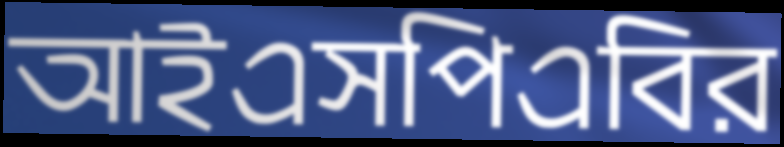
আইএসপিএবির